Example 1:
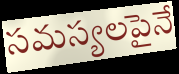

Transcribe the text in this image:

సమస్యలపైనే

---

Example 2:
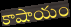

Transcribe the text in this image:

కాషాయం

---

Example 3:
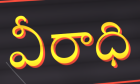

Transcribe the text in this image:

వీరాధి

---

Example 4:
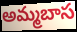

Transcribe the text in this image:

అమ్మబాస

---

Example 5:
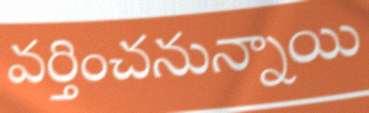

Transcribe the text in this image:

వర్తించనున్నాయి